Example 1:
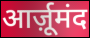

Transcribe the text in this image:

आर्ज़ूमंद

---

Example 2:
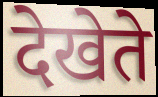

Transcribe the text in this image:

देखेते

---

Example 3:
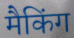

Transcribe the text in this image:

मैकिंग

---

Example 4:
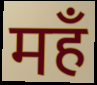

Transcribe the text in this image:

महँ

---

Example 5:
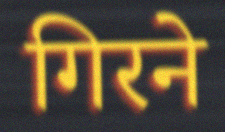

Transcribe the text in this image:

गिरने